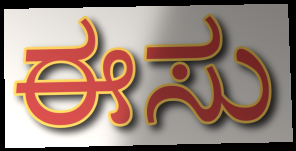
ಈಸು